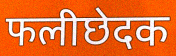
फलीछेदक